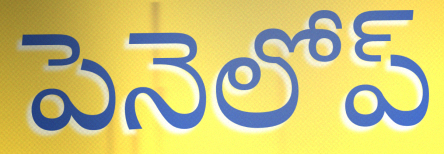
పెనెలోప్